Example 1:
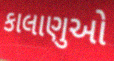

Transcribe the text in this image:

કાલાણુઓ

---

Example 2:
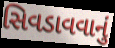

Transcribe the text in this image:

સિવડાવવાનું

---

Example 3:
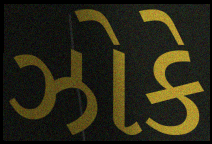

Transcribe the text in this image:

ઝોકે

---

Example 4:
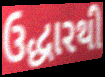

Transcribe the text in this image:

ઉદ્ધારથી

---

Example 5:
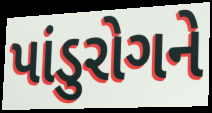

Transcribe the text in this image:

પાંડુરોગને